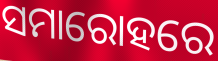
ସମାରୋହରେ